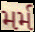
મર્મ